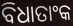
ବିଧାତାଂକ